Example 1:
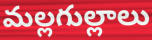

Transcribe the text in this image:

మల్లగుల్లాలు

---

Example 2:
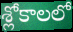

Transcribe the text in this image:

శ్లోకాలలో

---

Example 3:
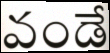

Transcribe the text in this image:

వండే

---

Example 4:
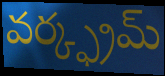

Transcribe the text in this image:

వర్క్ఫ్రమ్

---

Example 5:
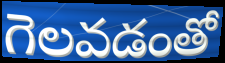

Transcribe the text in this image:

గెలవడంతో